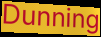
Dunning